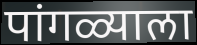
पांगळ्याला